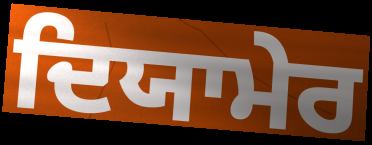
ਦਿਯਾਮੇਰ